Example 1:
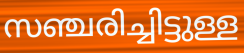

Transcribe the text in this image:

സഞ്ചരിച്ചിട്ടുള്ള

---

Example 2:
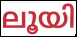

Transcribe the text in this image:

ലൂയി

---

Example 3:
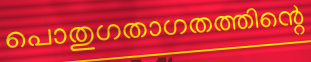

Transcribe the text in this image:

പൊതുഗതാഗതത്തിന്റെ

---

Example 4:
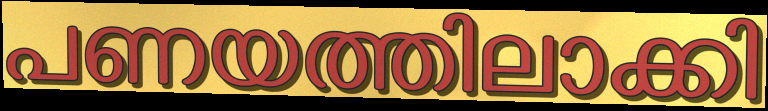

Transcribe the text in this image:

പണയത്തിലാക്കി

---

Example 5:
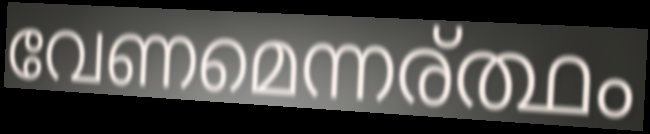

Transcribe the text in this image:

വേണമെന്നര്ത്ഥം